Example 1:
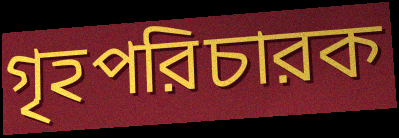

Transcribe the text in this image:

গৃহপরিচারক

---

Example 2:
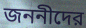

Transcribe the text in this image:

জননীদের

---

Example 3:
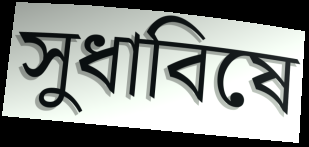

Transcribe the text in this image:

সুধাবিষে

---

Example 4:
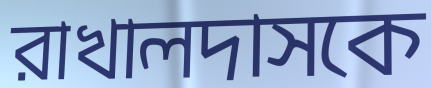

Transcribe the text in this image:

রাখালদাসকে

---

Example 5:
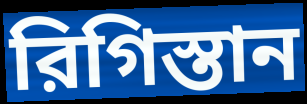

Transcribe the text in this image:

রিগিস্তান